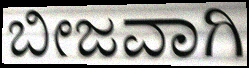
ಬೀಜವಾಗಿ